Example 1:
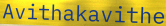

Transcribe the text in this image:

Avithakavithe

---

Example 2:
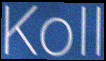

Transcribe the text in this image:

Koll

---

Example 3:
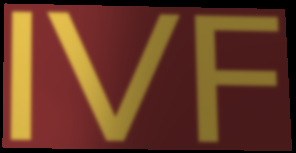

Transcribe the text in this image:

IVF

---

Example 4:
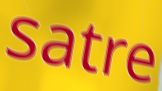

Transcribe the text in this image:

satre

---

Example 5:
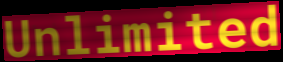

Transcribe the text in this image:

Unlimited